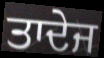
ਤਾਦੇਜ